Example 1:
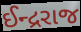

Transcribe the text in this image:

ઈન્દ્રરાજ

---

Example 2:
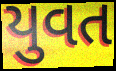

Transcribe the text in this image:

યુવત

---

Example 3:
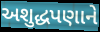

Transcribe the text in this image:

અશુદ્ધપણાને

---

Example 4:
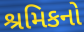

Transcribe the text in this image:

શ્રમિકનો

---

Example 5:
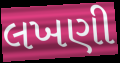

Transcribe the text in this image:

લખણી